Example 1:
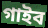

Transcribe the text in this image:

গাইব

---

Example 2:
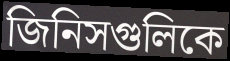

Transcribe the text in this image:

জিনিসগুলিকে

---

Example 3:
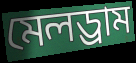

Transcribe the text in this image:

মেলড্রাম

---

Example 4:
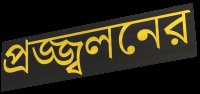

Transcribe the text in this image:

প্রজ্জ্বলনের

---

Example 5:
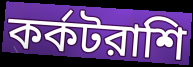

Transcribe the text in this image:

কর্কটরাশি